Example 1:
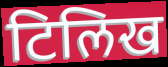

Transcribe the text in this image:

टिलिख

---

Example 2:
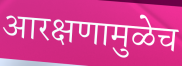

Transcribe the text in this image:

आरक्षणामुळेच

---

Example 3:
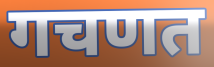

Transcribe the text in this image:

गचणत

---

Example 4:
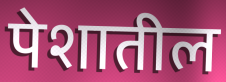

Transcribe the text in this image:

पेशातील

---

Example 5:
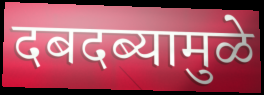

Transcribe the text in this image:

दबदब्यामुळे